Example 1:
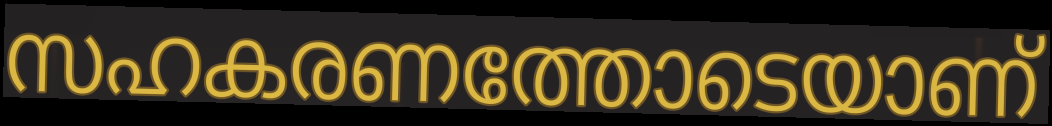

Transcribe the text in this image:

സഹകരണത്തോടെയാണ്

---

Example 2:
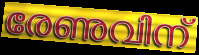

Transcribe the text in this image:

രേണുവിന്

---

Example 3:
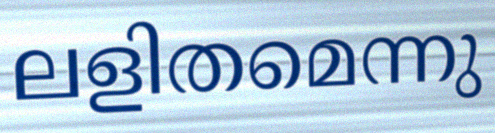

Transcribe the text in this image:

ലളിതമെന്നു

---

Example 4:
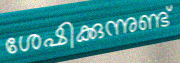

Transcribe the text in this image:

ശേഷിക്കുന്നുണ്ട്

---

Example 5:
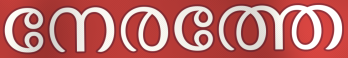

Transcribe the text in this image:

നേരത്തേ